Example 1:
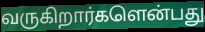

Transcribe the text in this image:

வருகிறார்களென்பது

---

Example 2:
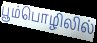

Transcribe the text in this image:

பூம்பொழிலில்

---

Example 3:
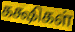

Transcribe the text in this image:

கக்ஷிகள்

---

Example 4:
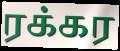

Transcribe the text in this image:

ரக்கர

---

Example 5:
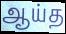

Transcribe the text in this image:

ஆய்த